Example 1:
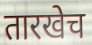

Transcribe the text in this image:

तारखेच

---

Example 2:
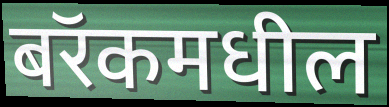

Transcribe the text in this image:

बरॅकमधील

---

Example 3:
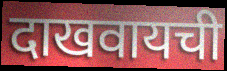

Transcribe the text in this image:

दाखवायची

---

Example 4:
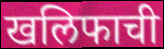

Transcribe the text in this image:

खलिफाची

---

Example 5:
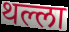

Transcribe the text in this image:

थल्ला